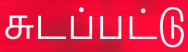
சுடப்பட்டு